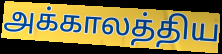
அக்காலத்திய